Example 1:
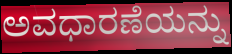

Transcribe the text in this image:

ಅವಧಾರಣೆಯನ್ನು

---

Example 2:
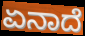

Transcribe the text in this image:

ಏನಾದೆ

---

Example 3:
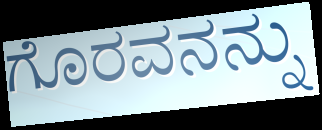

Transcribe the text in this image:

ಗೊರವನನ್ನು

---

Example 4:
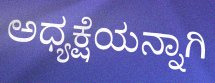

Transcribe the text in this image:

ಅಧ್ಯಕ್ಷೆಯನ್ನಾಗಿ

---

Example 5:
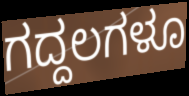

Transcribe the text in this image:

ಗದ್ದಲಗಳೂ